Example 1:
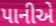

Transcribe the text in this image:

પાનીએ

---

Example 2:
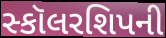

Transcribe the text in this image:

સ્કૉલરશિપની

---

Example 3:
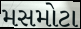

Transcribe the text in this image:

મસમોટા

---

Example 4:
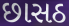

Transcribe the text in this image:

છાસઠ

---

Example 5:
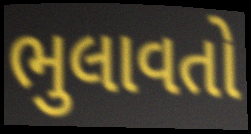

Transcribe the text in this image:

ભુલાવતો